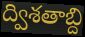
ద్విశతాబ్ది